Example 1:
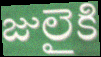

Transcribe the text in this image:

జులైకి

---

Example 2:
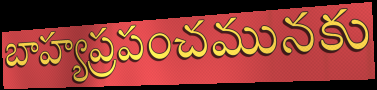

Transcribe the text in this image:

బాహ్యప్రపంచమునకు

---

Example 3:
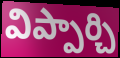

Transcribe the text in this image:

విప్పార్చి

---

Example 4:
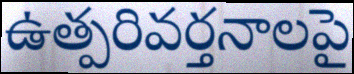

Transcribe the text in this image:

ఉత్పరివర్తనాలపై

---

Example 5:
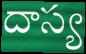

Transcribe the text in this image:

దాస్య